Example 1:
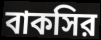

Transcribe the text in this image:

বাকসির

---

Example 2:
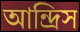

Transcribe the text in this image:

আন্দ্রিস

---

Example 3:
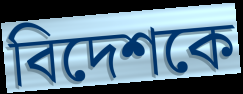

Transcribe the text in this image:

বিদেশকে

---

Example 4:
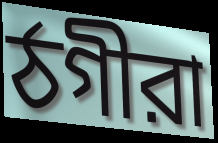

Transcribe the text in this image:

ঠগীরা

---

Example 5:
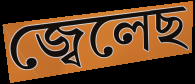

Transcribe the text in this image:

জ্বেলেছ